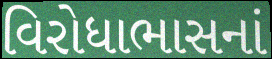
વિરોધાભાસનાં